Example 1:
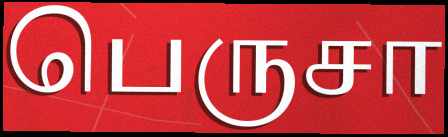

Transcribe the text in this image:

பெருசா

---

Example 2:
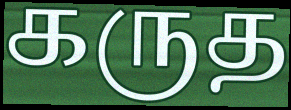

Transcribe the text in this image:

கருத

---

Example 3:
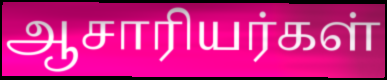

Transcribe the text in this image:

ஆசாரியர்கள்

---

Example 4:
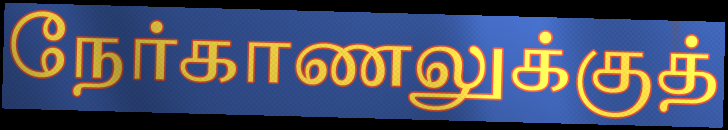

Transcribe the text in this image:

நேர்காணலுக்குத்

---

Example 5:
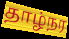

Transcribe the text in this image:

தாழ்நர